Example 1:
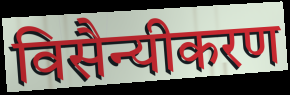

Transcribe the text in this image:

विसैन्यीकरण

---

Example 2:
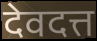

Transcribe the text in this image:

देवदत्त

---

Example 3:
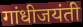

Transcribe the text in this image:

गांधीजयंती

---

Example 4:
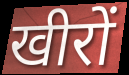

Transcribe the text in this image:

खीरों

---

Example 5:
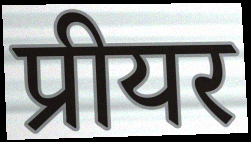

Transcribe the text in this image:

प्रीयर